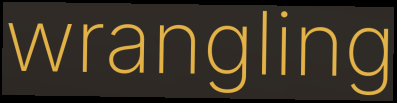
wrangling